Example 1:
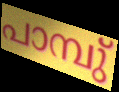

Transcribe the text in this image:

പാമ്പു്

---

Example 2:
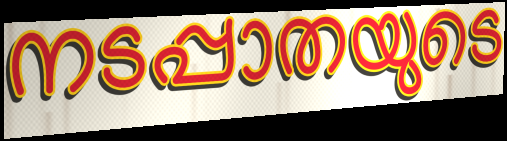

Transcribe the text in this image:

നടപ്പാതയുടെ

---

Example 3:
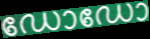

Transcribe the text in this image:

ഡോഡോ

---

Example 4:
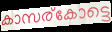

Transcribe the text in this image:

കാസര്കോട്ടെ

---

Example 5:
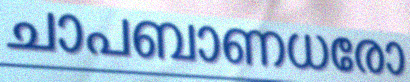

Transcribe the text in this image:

ചാപബാണധരോ